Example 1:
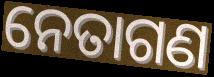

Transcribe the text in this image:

ନେତାଗଣ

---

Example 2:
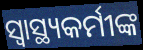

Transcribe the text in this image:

ସ୍ବାସ୍ଥ୍ୟକର୍ମୀଙ୍କ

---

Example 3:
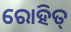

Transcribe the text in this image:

ରୋହିତ୍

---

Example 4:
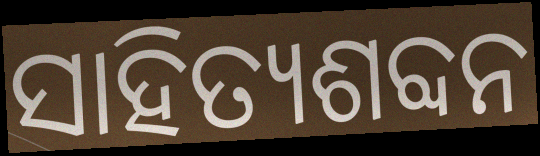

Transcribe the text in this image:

ସାହିତ୍ୟଶବ୍ଦନ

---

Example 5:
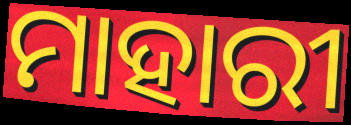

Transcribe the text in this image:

ମାହାରୀ